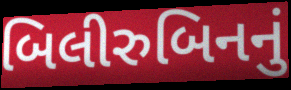
બિલીરુબિનનું